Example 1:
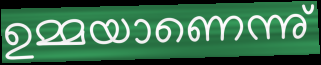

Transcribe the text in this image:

ഉമ്മയാണെന്നു്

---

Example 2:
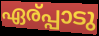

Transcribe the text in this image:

ഏര്പ്പാടു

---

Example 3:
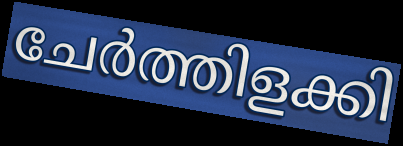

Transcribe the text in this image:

ചേർത്തിളക്കി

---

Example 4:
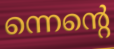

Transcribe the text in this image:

ന്നെന്റെ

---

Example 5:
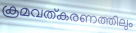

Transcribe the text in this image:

ക്രമവത്കരണത്തിലും